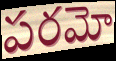
పరమో